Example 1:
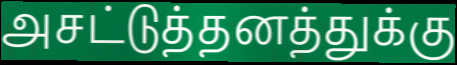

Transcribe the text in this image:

அசட்டுத்தனத்துக்கு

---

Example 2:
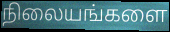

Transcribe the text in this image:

நிலையங்களை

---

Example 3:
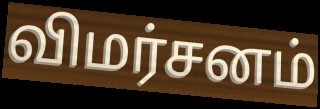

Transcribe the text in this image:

விமர்சனம்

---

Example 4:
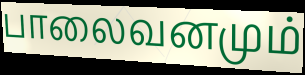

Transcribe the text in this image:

பாலைவனமும்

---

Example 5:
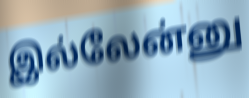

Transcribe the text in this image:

இல்லேன்னு